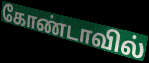
கோண்டாவில்